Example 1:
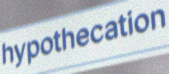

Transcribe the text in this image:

hypothecation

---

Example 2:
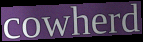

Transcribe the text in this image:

cowherd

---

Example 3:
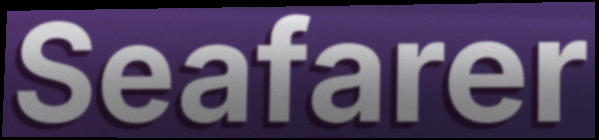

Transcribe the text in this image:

Seafarer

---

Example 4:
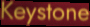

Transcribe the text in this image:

Keystone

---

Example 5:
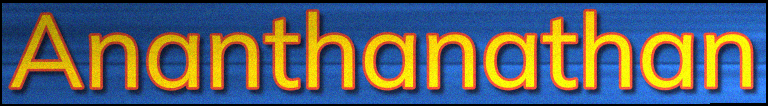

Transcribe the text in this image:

Ananthanathan